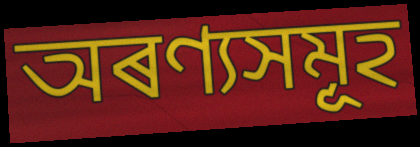
অৰণ্যসমূহ